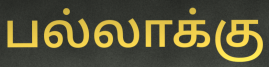
பல்லாக்கு